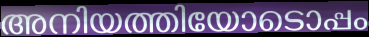
അനിയത്തിയോടൊപ്പം